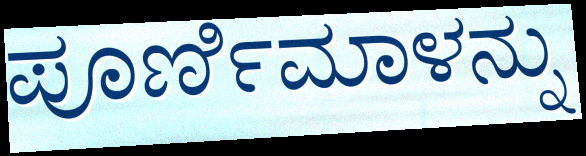
ಪೂರ್ಣಿಮಾಳನ್ನು